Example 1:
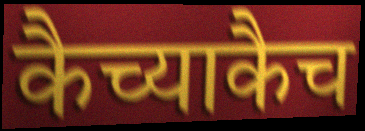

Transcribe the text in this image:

कैच्याकैच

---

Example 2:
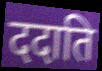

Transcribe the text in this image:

ददाति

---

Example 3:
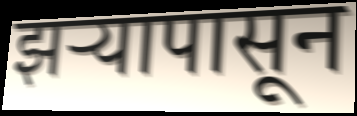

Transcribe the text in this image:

झऱ्यापासून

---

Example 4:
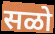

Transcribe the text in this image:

सळो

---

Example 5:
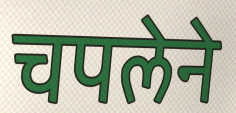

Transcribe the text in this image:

चपलेने